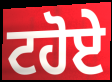
ਟਹੋਏ